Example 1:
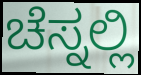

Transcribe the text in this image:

ಚೆಸ್ನಲ್ಲಿ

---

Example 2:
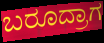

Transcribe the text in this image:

ಬರೂದ್ರಾಗ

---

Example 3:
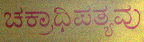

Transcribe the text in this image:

ಚಕ್ರಾಧಿಪತ್ಯವು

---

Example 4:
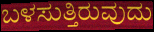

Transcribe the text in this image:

ಬಳಸುತ್ತಿರುವುದು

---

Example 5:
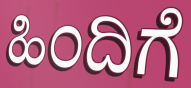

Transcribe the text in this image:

ಹಿಂದಿಗೆ